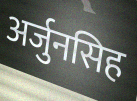
अर्जुनसिह